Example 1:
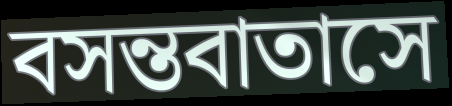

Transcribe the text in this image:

বসন্তবাতাসে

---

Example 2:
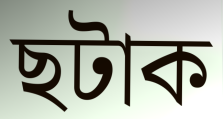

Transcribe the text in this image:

ছটাক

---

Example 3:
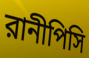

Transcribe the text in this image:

রানীপিসি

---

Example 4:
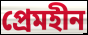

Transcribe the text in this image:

প্রেমহীন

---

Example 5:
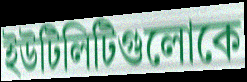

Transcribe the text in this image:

ইউটিলিটিগুলোকে